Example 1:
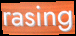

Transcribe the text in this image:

rasing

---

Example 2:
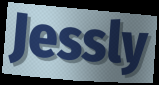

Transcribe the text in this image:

Jessly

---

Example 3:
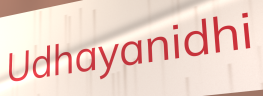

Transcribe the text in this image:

Udhayanidhi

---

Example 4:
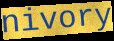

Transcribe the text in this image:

nivory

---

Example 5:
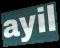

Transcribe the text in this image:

ayil